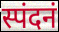
स्पंदनं